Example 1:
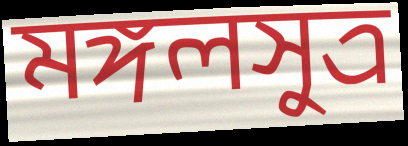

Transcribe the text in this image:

মঙ্গলসুত্র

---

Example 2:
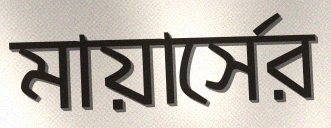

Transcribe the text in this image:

মায়ার্সের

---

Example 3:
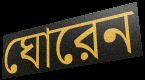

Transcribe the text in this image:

ঘোরেন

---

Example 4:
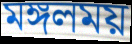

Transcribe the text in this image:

মঙ্গলময়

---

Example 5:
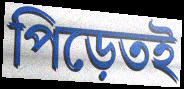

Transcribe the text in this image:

পিড়েতই